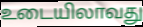
உடையிலாவது